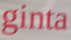
ginta